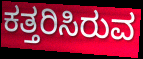
ಕತ್ತರಿಸಿರುವ